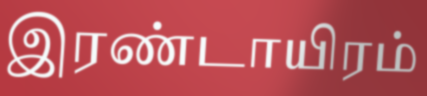
இரண்டாயிரம்